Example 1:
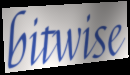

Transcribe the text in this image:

bitwise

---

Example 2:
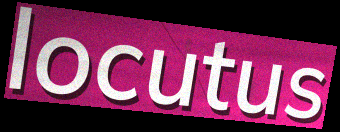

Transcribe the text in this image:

locutus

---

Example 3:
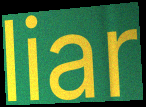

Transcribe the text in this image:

liar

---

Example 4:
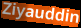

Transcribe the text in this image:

Ziyauddin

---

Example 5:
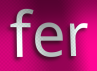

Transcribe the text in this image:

fer